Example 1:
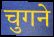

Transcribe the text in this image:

चुगने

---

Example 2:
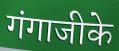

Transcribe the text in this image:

गंगाजीके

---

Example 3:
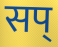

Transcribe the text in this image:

सप्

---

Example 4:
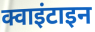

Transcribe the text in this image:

क्वाइंटाइन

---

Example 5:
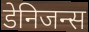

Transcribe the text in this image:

डेनिजन्स